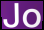
Jo